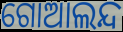
ଗୋଆଲନ୍ଦ